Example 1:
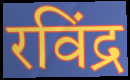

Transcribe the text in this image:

रविंद्र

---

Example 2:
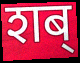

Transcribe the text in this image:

शब्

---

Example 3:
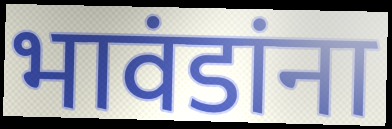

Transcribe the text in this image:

भावंडांना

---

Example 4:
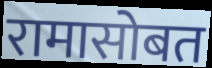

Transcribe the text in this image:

रामासोबत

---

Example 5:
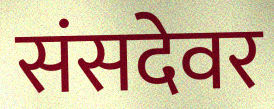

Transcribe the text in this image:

संसदेवर